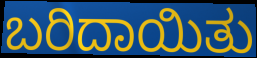
ಬರಿದಾಯಿತು